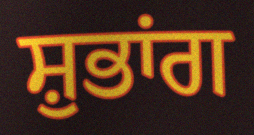
ਸ਼ੁਭਾਂਗ